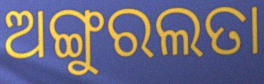
ଅଙ୍ଗୁରଲତା